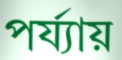
পৰ্য্যায়